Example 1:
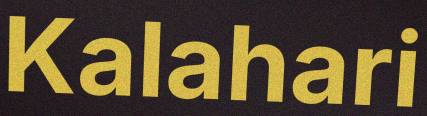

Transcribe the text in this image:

Kalahari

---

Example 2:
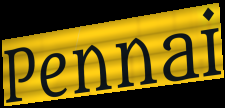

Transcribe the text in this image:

Pennai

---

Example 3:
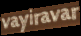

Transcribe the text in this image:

vayiravar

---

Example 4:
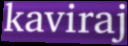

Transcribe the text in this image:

kaviraj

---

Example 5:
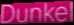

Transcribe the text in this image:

Dunkel